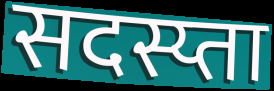
सदस्य्ता